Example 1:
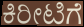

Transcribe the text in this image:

ಕಿರೀಟಿಗೆ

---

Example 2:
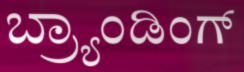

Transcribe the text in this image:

ಬ್ರ್ಯಾಂಡಿಂಗ್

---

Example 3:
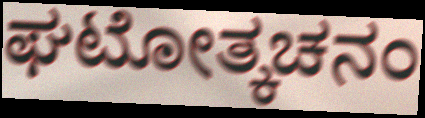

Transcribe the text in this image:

ಘಟೋತ್ಕಚನಂ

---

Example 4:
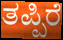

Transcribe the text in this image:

ತಪ್ಪಿರೆ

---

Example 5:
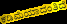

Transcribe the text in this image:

ಕಡಿಮೆಯಾದಂತಿದೆ